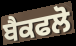
ਬੈਕਫਲੋ